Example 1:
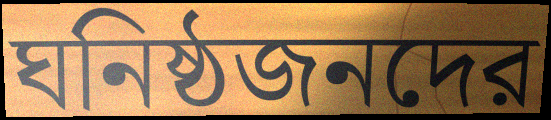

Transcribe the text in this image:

ঘনিষ্ঠজনদের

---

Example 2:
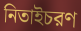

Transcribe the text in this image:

নিতাইচরণ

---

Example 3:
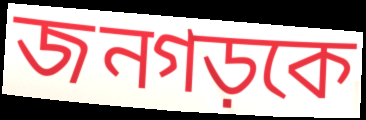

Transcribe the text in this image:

জনগড়কে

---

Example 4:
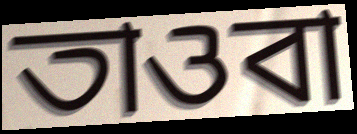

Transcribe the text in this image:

তাওবা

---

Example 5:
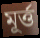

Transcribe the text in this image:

মূর্ত্ত